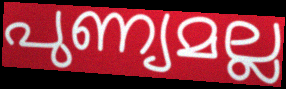
പുണ്യമല്ല